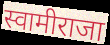
स्वामीराजा